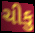
ચીકુ